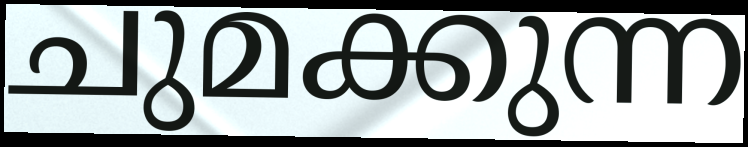
ചുമക്കുന്ന